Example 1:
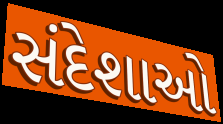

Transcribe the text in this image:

સંદેશાઓ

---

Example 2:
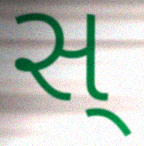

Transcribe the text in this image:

સ્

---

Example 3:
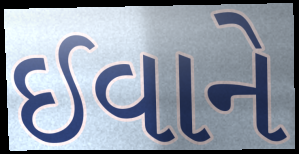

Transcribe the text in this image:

ઈવાને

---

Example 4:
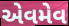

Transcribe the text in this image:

એવમેવ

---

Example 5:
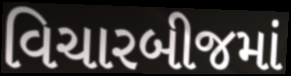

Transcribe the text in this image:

વિચારબીજમાં